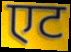
एट